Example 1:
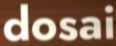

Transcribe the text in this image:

dosai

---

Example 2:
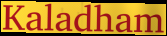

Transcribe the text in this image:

Kaladham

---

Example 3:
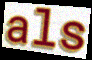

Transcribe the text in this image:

als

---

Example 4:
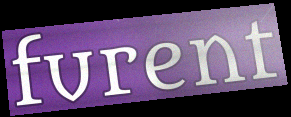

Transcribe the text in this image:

furent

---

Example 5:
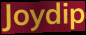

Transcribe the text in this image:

Joydip